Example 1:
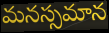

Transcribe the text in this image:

మనస్సమాన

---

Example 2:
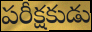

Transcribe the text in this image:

పరీక్షకుడు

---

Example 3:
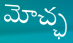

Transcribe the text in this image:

మోచ్ఛ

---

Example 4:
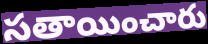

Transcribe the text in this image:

సతాయించారు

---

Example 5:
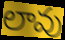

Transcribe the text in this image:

లావు